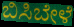
ಬಿಸಿಬೇಳೆ